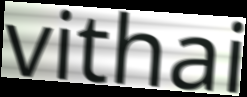
vithai